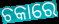
ଚକାରେ